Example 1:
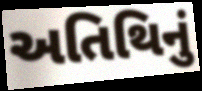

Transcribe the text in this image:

અતિથિનું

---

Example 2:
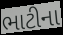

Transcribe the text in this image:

ભાટીના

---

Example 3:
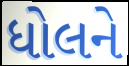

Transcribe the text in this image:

ધોલને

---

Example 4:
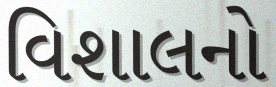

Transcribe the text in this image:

વિશાલનો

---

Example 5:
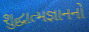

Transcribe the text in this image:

શુદ્ધાત્મજ્ઞાનનો